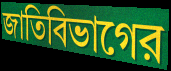
জাতিবিভাগের